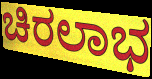
ಚಿರಲಾಭ